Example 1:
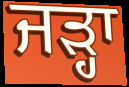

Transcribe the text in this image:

ਜੜ੍ਹਾ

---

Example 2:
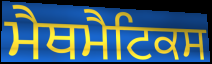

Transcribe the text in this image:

ਮੈਥਮੈਟਿਕਸ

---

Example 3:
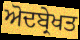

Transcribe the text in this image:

ਅੋਦਬ੍ਰੇਖਤ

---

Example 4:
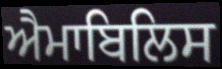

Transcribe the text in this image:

ਐਮਾਬਿਲਿਸ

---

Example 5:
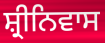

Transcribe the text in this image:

ਸ਼੍ਰੀਨਿਵਾਸ